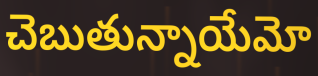
చెబుతున్నాయేమో